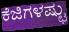
ಕೆಜಿಗಳಷ್ಟು